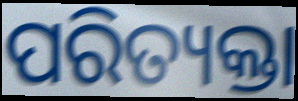
ପରିତ୍ୟକ୍ତା